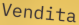
Vendita